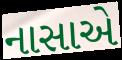
નાસાએ